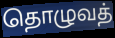
தொழுவத்